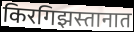
किरगिझस्तानात